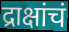
द्राक्षांचं